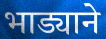
भाड्याने